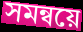
সমন্বয়ে